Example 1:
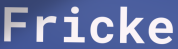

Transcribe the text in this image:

Fricke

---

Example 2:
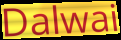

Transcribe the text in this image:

Dalwai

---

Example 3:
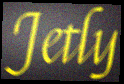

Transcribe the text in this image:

Jetly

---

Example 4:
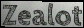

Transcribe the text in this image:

Zealot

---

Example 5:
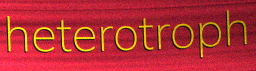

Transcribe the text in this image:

heterotroph